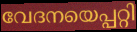
വേദനയെപ്പറ്റി